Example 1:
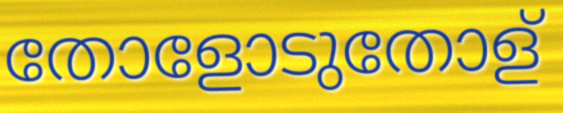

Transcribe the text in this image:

തോളോടുതോള്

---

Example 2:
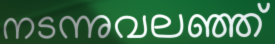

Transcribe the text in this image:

നടന്നുവലഞ്ഞ്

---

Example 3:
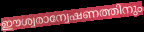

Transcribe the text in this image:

ഈശ്വരാന്വേഷണത്തിനും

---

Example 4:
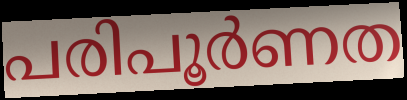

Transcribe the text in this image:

പരിപൂർണത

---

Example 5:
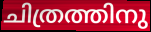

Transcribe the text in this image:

ചിത്രത്തിനു